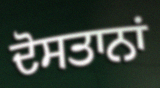
ਦੋਸਤਾਨਾਂ